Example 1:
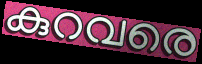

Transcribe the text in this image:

കുറവരെ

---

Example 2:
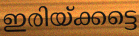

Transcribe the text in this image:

ഇരിയ്ക്കട്ടെ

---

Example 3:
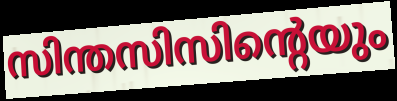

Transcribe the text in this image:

സിന്തസിസിന്റെയും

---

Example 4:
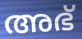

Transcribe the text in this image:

അഭ്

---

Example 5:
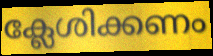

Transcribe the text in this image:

ക്ലേശിക്കണം